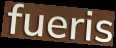
fueris